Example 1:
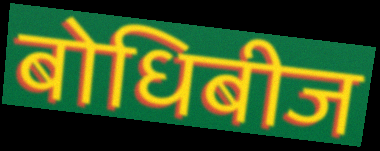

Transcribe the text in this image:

बोधिबीज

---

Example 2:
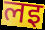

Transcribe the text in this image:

लइ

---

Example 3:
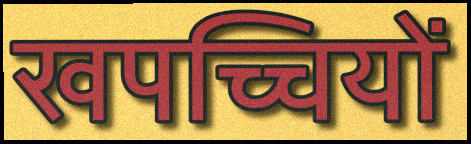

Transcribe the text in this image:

खपच्चियों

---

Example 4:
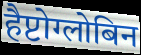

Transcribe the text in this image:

हैप्टोग्लोबिन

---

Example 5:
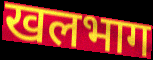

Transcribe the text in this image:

खलभाग